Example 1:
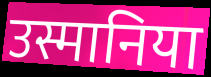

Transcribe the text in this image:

उस्मानिया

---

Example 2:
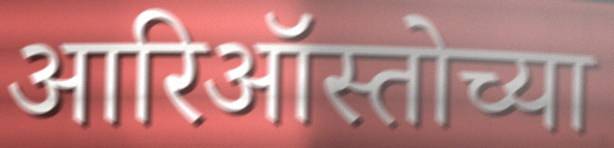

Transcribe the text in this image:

आरिऑस्तोच्या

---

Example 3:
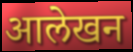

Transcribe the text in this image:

आलेखन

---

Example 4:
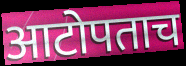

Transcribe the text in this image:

आटोपताच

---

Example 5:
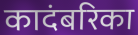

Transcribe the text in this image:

कादंबरिका